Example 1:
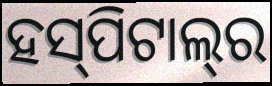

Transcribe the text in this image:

ହସ୍‍ପିଟାଲ୍‍ର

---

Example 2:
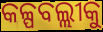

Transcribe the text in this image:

କଳ୍ପବଲ୍ଲୀକୁ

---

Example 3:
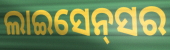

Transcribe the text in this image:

ଲାଇସେନ୍‌ସର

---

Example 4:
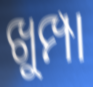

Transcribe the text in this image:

ଖୁମ୍ପା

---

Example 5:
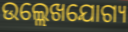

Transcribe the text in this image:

ଉଲ୍ଲେଖଯୋଗ୍ୟ